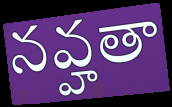
నవ్హతా